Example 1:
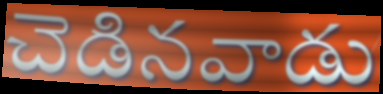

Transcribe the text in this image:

చెడినవాడు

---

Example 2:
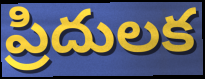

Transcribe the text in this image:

ప్రిదులక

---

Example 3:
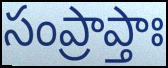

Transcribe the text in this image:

సంప్రాప్తాః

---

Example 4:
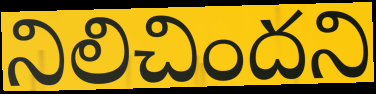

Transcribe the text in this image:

నిలిచిందని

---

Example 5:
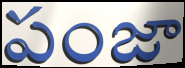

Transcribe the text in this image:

పంజా